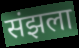
संझला